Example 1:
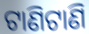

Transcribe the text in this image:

ଟାଣିଟାଣି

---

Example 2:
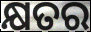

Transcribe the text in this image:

କ୍ଷତର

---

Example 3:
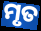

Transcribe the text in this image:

ମୃତ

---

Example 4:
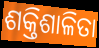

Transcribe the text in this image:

ଶକ୍ତିଶାଳିତା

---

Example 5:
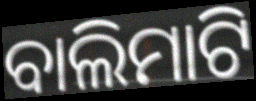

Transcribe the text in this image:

ବାଲିମାଟି